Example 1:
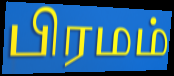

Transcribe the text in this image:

பிரமம்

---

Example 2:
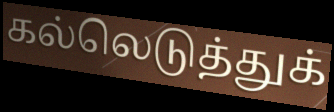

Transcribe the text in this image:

கல்லெடுத்துக்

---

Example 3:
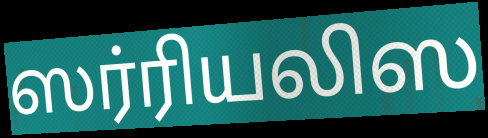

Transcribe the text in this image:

ஸர்ரியலிஸ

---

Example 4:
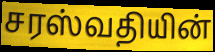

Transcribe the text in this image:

சரஸ்வதியின்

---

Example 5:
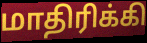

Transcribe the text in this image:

மாதிரிக்கி